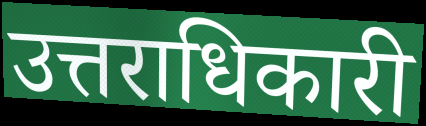
उत्तराधिकारी